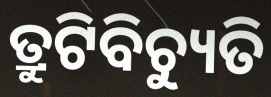
ତ୍ରୁଟିବିଚ୍ୟୁତି